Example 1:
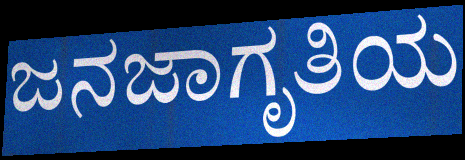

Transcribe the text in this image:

ಜನಜಾಗೃತಿಯ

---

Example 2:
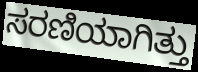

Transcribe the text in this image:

ಸರಣಿಯಾಗಿತ್ತು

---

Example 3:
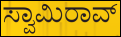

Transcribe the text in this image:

ಸ್ವಾಮಿರಾವ್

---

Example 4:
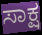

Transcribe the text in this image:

ಸಾಕ್ಷ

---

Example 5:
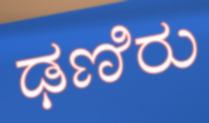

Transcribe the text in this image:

ಢಣಿರು